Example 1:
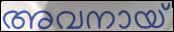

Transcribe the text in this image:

അവനായ്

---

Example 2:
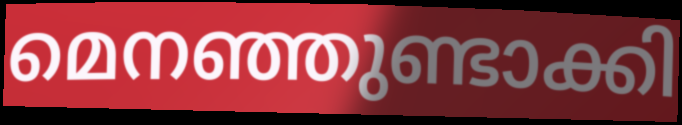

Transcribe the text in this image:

മെനഞ്ഞുണ്ടാക്കി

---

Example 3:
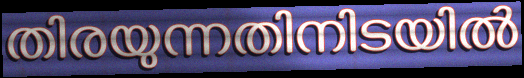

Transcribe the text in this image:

തിരയുന്നതിനിടയിൽ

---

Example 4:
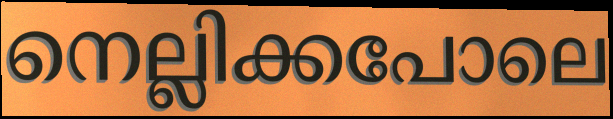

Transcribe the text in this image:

നെല്ലിക്കപോലെ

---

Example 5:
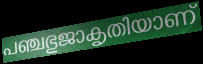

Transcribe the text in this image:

പഞ്ചഭുജാകൃതിയാണ്